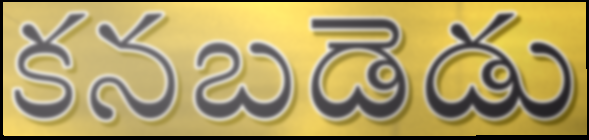
కనబడెడు